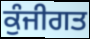
ਕੁੰਜੀਗਤ